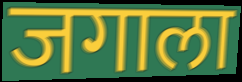
जगाला